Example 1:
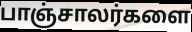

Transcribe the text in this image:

பாஞ்சாலர்களை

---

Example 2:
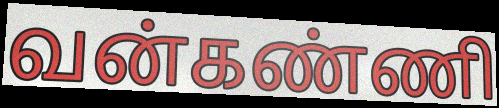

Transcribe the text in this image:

வன்கண்ணி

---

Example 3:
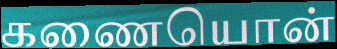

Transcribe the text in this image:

கணையொன்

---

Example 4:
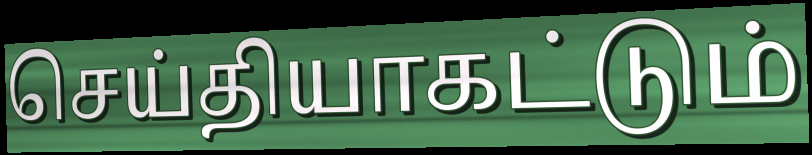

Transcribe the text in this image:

செய்தியாகட்டும்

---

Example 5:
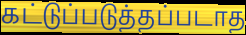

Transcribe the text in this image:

கட்டுப்படுத்தப்படாத